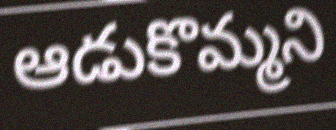
ఆడుకొమ్మని